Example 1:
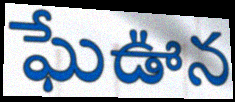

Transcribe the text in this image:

ఘేఊన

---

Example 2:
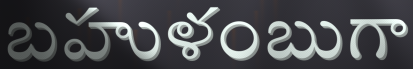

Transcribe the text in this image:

బహుళంబుగా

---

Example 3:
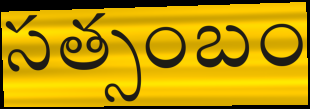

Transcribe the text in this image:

సత్సంబం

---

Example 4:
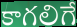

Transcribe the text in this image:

కాగలిగే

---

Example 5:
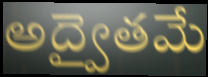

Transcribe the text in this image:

అద్వైతమే